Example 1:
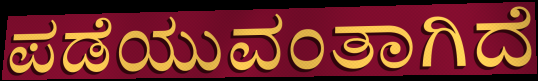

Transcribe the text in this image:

ಪಡೆಯುವಂತಾಗಿದೆ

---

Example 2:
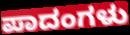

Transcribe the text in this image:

ಪಾದಂಗಳು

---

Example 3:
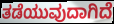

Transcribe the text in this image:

ತಡೆಯುವುದಾಗಿದೆ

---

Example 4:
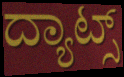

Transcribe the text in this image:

ದ್ಯಾಟ್ಸ್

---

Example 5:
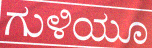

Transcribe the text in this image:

ಗುಳಿಯೂ